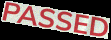
PASSED